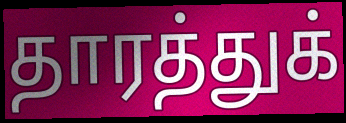
தாரத்துக்